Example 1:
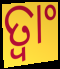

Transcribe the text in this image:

ତ୍ଵାଂ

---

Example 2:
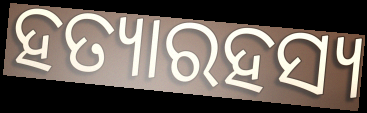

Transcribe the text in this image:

ହତ୍ୟାରହସ୍ୟ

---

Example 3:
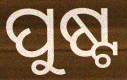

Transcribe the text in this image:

ପୁଷ୍ଟ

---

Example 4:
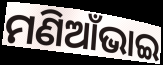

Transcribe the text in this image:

ମଣିଆଁଭାଇ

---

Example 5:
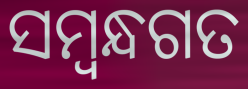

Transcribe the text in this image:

ସମ୍ବନ୍ଧଗତ